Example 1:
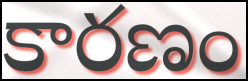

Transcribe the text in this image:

కారణం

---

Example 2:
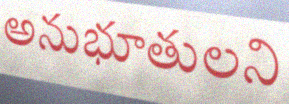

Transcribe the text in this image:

అనుభూతులని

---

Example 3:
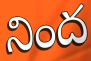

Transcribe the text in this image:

నింద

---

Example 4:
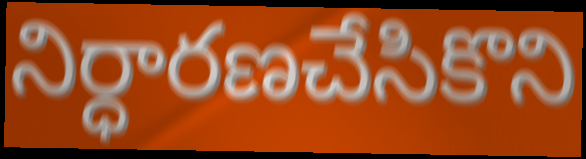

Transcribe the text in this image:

నిర్ధారణచేసికొని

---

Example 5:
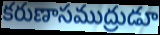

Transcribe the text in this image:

కరుణాసముద్రుడూ